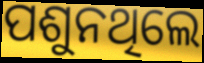
ପଶୁନଥିଲେ